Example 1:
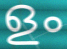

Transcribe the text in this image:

ളം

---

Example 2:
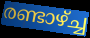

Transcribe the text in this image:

രണ്ടാഴ്ച്ച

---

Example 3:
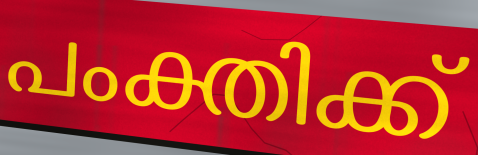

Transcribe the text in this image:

പംക്തിക്ക്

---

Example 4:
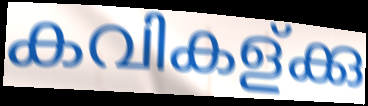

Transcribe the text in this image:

കവികള്ക്കു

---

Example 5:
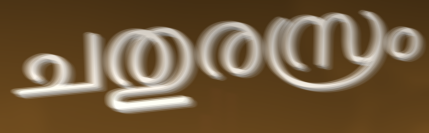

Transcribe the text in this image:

ചതുരസ്രം